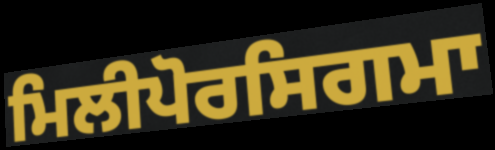
ਮਿਲੀਪੋਰਸਿਗਮਾ